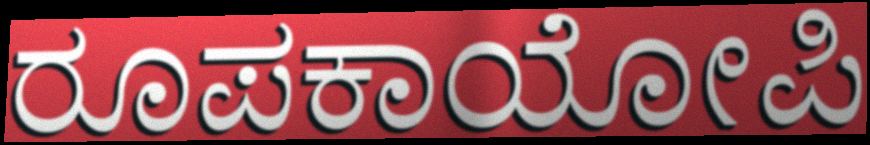
ರೂಪಕಾಯೋಪಿ